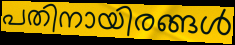
പതിനായിരങ്ങൾ